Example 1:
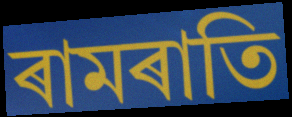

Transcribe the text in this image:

ৰামৰাতি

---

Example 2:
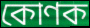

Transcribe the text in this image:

কোণক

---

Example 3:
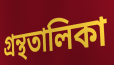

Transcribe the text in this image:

গ্ৰন্থতালিকা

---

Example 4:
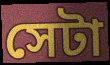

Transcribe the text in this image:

সেটা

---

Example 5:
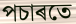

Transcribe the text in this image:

পচাৰতে